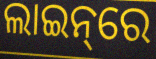
ଲାଇନ୍‌ରେ